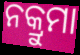
ନକ୍ରୁମା